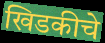
खिडकीचे